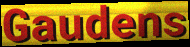
Gaudens